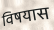
विषयास